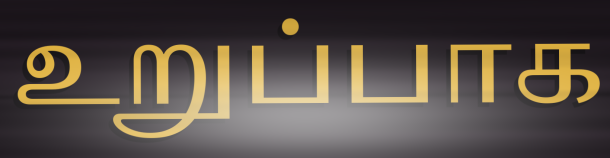
உறுப்பாக